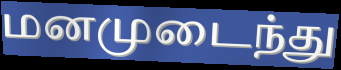
மனமுடைந்து